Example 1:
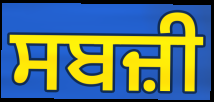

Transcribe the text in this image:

ਸਬਜ਼ੀ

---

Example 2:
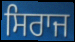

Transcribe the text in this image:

ਸਿਰਾਜ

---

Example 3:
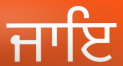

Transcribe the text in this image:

ਜਾਇ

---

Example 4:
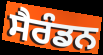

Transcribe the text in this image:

ਸੈਰੰਡਨ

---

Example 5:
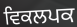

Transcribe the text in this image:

ਵਿਕਲਪਕ